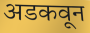
अडकवून